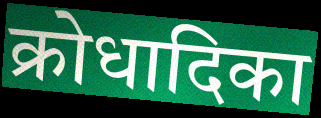
क्रोधादिका